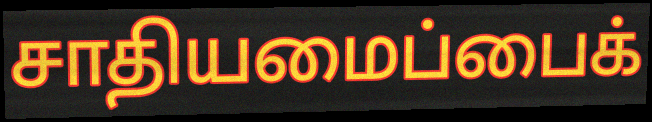
சாதியமைப்பைக்